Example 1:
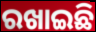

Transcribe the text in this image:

ରଖାଇଛି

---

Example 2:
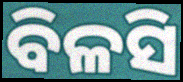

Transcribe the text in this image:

ବିଳସି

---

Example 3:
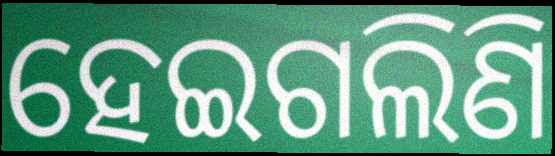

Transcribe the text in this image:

ହେଇଗଲିଣି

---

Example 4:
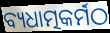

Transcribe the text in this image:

ବ୍ୟଧାତ୍ମକର୍ମଠ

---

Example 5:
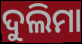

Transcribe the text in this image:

ଦୁଲିମା